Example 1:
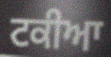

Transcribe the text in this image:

ਟਕੀਆ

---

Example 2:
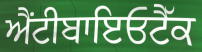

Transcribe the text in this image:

ਐਂਟੀਬਾਇਓਟੈੱਕ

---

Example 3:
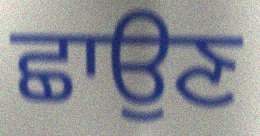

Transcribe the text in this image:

ਛਾਉਣ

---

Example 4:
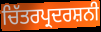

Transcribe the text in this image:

ਚਿੱਤਰਪ੍ਰਦਰਸ਼ਨੀ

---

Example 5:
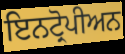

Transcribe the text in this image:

ਇਨਟ੍ਰੋਪੀਅਨ